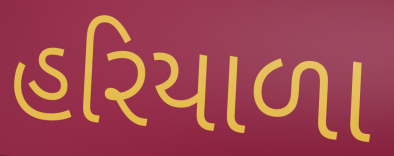
હરિયાળા